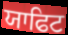
ਯਾਫਿਟ